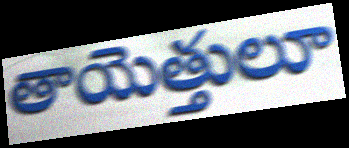
తాయెత్తులూ